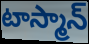
టాస్మాన్